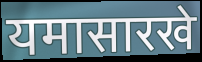
यमासारखे